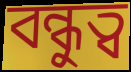
বন্ধুত্ব